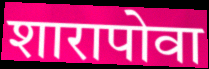
शारापोवा